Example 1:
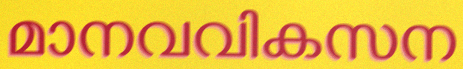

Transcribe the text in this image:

മാനവവികസന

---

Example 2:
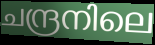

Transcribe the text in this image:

ചന്ദ്രനിലെ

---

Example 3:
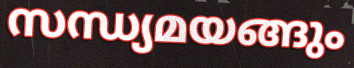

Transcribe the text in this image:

സന്ധ്യമയങ്ങും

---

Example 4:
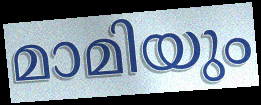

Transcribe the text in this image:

മാമിയും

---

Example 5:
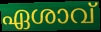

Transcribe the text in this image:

ഏശാവ്